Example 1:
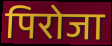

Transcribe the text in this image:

पिरोजा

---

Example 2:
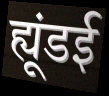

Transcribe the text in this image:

ह्यूंडई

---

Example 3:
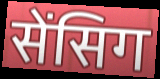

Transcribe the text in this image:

सेंसिग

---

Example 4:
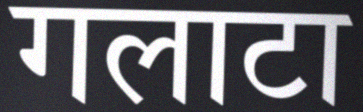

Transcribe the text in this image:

गलाटा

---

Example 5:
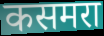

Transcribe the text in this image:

कसमरा